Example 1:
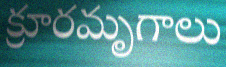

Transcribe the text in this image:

క్రూరమృగాలు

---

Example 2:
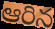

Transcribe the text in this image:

ఆరిన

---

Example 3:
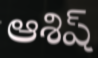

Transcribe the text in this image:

ఆశిష్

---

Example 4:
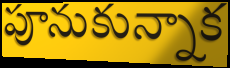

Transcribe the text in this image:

పూనుకున్నాక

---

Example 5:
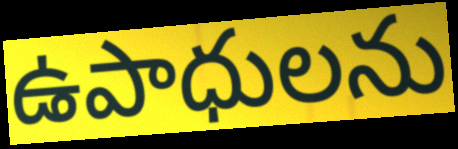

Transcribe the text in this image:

ఉపాధులను